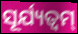
ସୂର୍ଯ୍ୟତ୍ୱମ୍